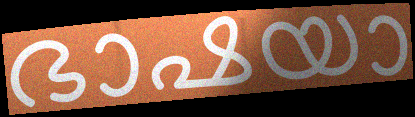
ഭാഷയാ